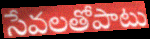
సేవలతోపాటు